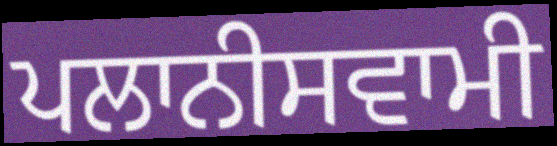
ਪਲਾਨੀਸਵਾਮੀ